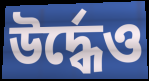
উর্দ্ধেও